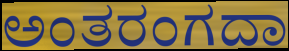
ಅಂತರಂಗದಾ